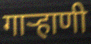
गार्‍हाणी